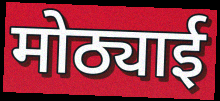
मोठ्याई